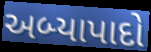
અબ્યાપાદો